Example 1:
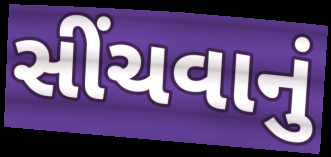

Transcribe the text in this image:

સીંચવાનું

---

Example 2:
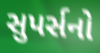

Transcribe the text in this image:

સુપર્સનો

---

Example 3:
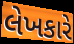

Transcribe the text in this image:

લેખકારે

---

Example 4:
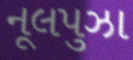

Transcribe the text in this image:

નૂલપુઝા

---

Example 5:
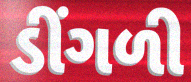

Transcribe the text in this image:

ડીંગળી